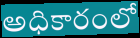
అధికారంలో